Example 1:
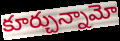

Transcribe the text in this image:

కూర్చున్నామో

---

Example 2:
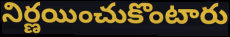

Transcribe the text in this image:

నిర్ణయించుకొంటారు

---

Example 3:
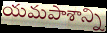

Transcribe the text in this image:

యమపాశాన్ని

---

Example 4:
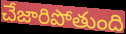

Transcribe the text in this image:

చేజారిపోతుంది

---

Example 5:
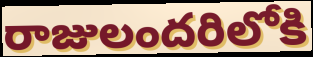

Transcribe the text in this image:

రాజులందరిలోకి